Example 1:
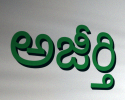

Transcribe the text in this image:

అజీర్తి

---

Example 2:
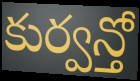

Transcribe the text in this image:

కుర్వన్తో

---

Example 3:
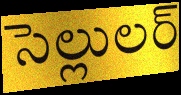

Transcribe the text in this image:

సెల్లులర్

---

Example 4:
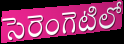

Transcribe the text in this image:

సెరెంగెటిలో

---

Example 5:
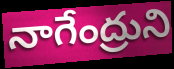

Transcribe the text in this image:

నాగేంద్రుని